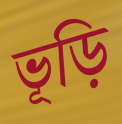
ভূড়ি